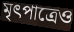
মৃৎপাত্রেও